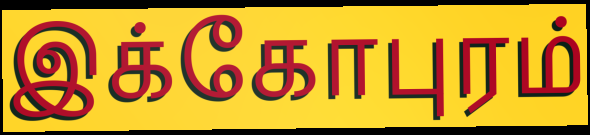
இக்கோபுரம்